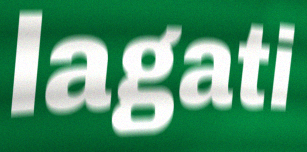
lagati